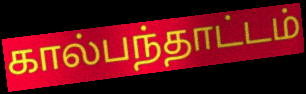
கால்பந்தாட்டம்